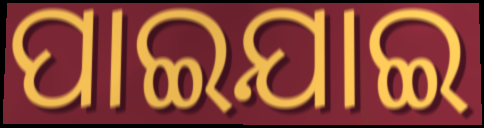
ପାଇଯାଇ